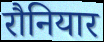
रौनियार